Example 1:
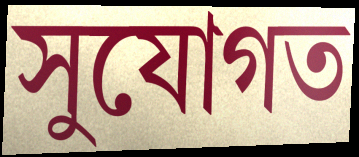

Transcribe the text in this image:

সুযোগত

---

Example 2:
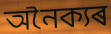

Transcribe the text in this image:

অনৈক্যৰ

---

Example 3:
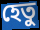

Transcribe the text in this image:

হেতু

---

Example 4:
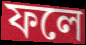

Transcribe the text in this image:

ফলে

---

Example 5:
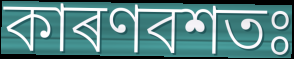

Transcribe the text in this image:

কাৰণবশতঃ